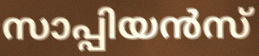
സാപ്പിയൻസ്